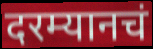
दरम्यानचं